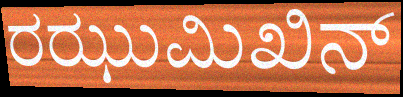
ರಝುಮಿಖಿನ್